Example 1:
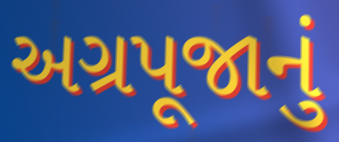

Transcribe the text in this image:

અગ્રપૂજાનું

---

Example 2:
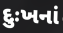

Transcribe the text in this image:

દુઃખનાં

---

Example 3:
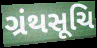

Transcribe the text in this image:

ગ્રંથસૂચિ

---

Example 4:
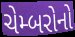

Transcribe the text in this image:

ચેમ્બરોનો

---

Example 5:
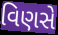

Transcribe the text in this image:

વિણસે